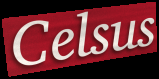
Celsus